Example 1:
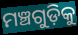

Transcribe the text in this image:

ମଞ୍ଚଗୁଡ଼ିକୁ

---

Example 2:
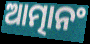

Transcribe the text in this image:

ଆତ୍ମାନଂ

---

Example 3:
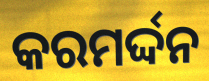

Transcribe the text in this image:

କରମର୍ଦ୍ଦନ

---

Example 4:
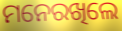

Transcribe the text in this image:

ମନେରଖିଲେ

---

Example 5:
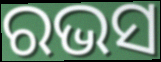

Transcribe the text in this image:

ରଭସ